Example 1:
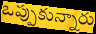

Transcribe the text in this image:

ఒప్పుకున్నారు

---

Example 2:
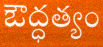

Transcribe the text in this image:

ఔద్ధత్యం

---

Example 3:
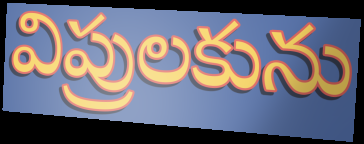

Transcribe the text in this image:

విప్రులకును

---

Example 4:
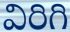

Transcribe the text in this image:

విరిగి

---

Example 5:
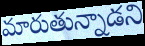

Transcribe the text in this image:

మారుతున్నాడని